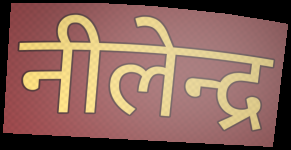
नीलेन्द्र